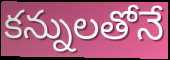
కన్నులతోనే